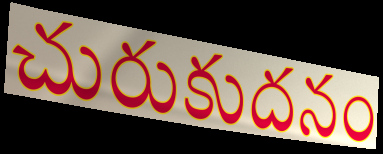
చురుకుదనం